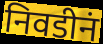
निवडीनं